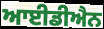
ਆਈਡੀਐਨ